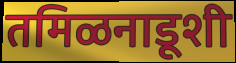
तमिळनाडूशी